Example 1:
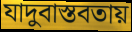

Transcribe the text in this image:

যাদুবাস্তবতায়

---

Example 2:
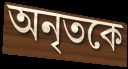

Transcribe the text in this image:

অনৃতকে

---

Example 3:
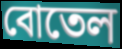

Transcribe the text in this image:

বোতেল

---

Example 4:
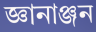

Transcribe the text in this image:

জ্ঞানাঞ্জন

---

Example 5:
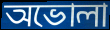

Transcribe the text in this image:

অভোলা